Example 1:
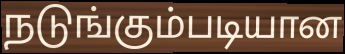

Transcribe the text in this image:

நடுங்கும்படியான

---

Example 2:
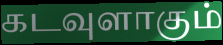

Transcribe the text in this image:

கடவுளாகும்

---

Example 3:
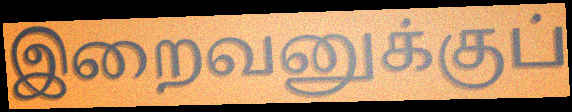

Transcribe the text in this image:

இறைவனுக்குப்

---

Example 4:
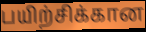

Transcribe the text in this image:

பயிற்சிக்கான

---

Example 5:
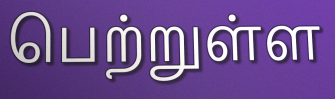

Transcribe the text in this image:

பெற்றுள்ள